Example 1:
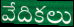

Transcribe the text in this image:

వేదికలు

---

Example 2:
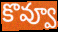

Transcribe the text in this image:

కొవ్వూ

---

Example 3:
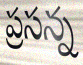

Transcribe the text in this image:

ప్రసన్న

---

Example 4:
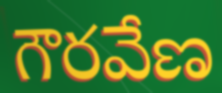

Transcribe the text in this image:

గౌరవేణ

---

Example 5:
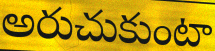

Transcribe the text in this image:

అరుచుకుంటా